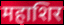
महाशिर